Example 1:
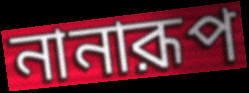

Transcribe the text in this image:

নানারূপ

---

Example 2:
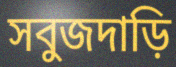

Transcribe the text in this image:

সবুজদাড়ি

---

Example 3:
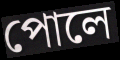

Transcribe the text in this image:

পোলে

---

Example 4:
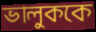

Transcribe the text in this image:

ভালুককে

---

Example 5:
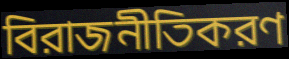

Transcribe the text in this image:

বিরাজনীতিকরণ